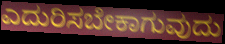
ಎದುರಿಸಬೇಕಾಗುವುದು